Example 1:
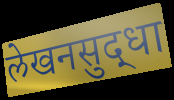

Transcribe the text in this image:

लेखनसुद्धा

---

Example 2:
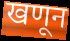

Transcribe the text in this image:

खणून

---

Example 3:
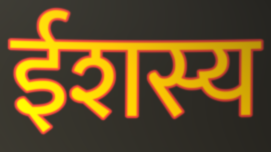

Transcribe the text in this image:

ईशस्य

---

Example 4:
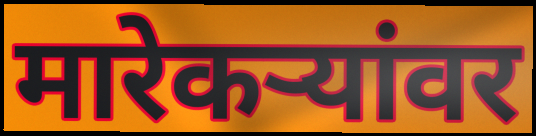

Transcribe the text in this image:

मारेकऱ्यांवर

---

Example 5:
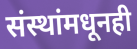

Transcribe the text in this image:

संस्थांमधूनही